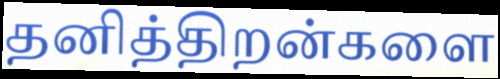
தனித்திறன்களை